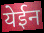
येईन